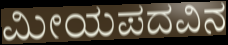
ಮೀಯಪದವಿನ